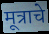
मूत्राचे